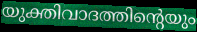
യുക്തിവാദത്തിന്റെയും